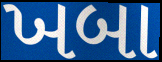
ખબા